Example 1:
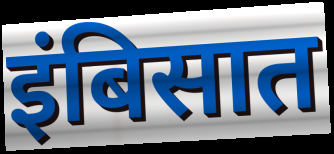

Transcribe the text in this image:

इंबिसात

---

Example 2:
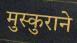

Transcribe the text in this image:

मुस्‍कुराने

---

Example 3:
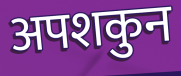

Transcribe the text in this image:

अपशकुन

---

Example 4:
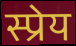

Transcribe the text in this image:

स्प्रेय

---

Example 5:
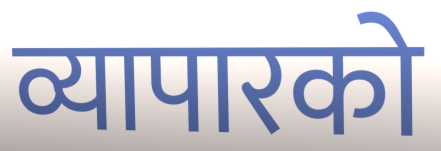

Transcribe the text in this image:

व्यापारको